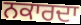
ਨਕਾਰਦਾ